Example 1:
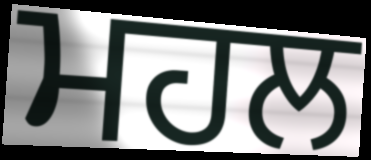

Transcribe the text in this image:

ਮਹਲ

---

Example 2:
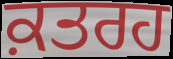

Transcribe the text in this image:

ਕ਼ਤਰਹ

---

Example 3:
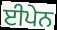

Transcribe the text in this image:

ਈਪੇਨ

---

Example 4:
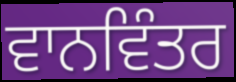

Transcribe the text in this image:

ਵਾਨਵਿੰਤਰ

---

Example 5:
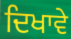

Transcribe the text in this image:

ਦਿਖਾਵੇ